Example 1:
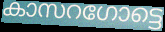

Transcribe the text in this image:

കാസറഗോട്ടെ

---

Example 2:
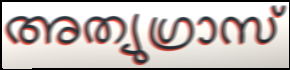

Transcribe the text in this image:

അത്യുഗ്രാസ്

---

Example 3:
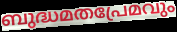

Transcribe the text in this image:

ബുദ്ധമതപ്രേമവും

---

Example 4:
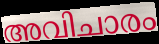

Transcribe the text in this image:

അവിചാരം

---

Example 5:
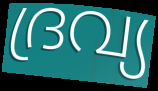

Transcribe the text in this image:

ദ്രവ്യ